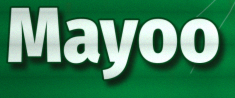
Mayoo